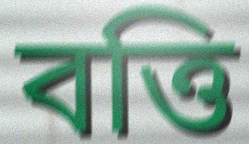
বত্তি